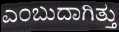
ಎಂಬುದಾಗಿತ್ತು